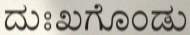
ದುಃಖಗೊಂಡು